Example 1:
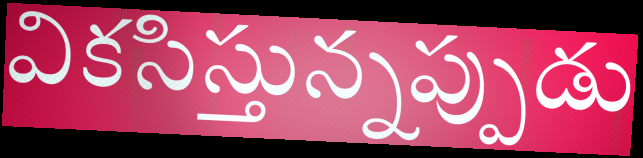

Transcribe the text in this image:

వికసిస్తున్నప్పుడు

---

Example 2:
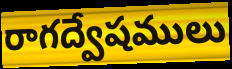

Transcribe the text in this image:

రాగద్వేషములు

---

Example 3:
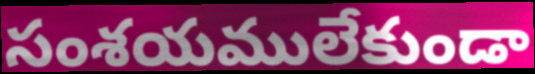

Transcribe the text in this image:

సంశయములేకుండా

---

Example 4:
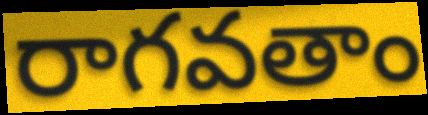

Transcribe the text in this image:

రాగవతాం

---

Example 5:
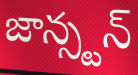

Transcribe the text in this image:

జాన్స్టన్